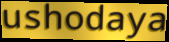
ushodaya